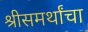
श्रीसमर्थांचा